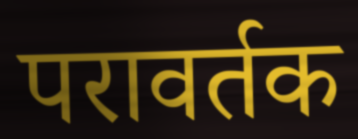
परावर्तक